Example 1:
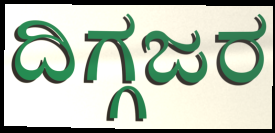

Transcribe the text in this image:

ದಿಗ್ಗಜರ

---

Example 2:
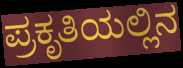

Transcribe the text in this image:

ಪ್ರಕೃತಿಯಲ್ಲಿನ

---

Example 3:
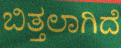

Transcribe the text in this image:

ಬಿತ್ತಲಾಗಿದೆ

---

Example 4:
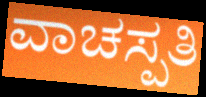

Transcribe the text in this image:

ವಾಚಸ್ಪತಿ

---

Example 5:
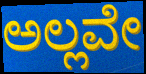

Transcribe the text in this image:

ಅಲ್ಲವೇ